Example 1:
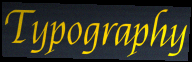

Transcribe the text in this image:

Typography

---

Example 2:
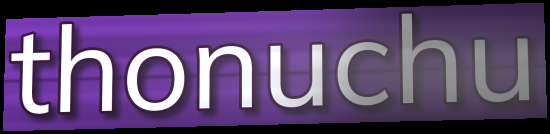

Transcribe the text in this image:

thonuchu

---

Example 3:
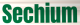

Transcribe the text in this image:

Sechium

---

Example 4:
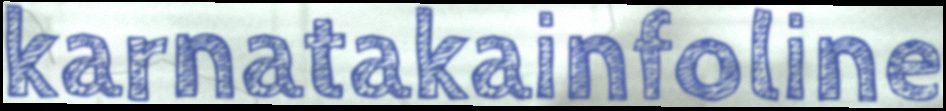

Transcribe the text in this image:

karnatakainfoline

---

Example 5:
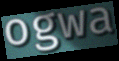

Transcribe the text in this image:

ogwa